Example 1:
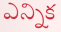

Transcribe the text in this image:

ఎన్నిక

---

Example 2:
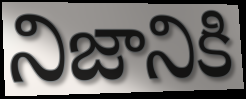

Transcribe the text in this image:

నిజానికి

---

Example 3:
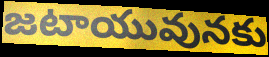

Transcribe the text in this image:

జటాయువునకు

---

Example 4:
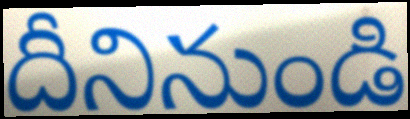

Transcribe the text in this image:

దీనినుండి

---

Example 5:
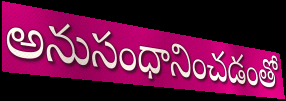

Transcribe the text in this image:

అనుసంధానించడంతో